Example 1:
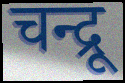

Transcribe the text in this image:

चन्द्रू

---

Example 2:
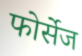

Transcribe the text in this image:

फोर्सेज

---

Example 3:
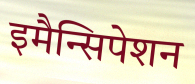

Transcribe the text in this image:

इमैन्सिपेशन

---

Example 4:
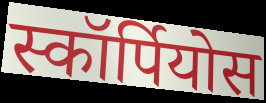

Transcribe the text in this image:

स्कॉर्पियोस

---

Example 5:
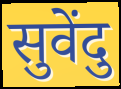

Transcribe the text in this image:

सुवेंदु